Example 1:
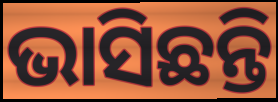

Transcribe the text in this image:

ଭାସିଛନ୍ତି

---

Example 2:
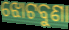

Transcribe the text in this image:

ଝୋଟବୁଣା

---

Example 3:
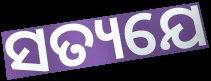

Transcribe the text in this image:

ସତ୍ୟଯେ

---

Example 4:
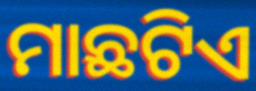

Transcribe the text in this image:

ମାଛଟିଏ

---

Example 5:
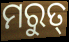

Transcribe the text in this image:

ମରୁତ୍